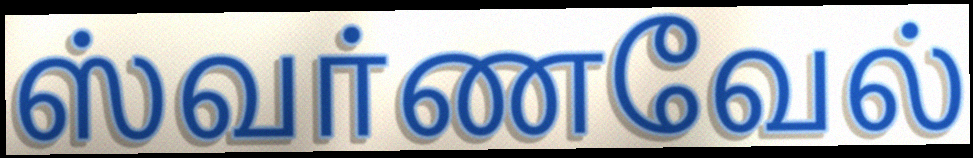
ஸ்வர்ணவேல்